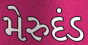
મેરુદંડ